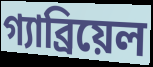
গ্যাব্রিয়েল